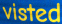
visted